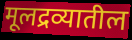
मूलद्रव्यातील